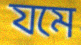
যমে